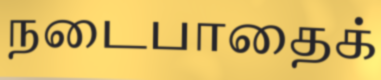
நடைபாதைக்